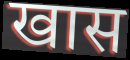
खास